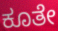
ಕೂತೇ